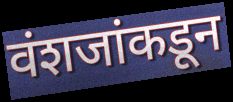
वंशजांकडून